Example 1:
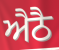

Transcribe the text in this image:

ਐਠੈ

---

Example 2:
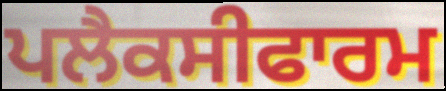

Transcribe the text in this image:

ਪਲੈਕਸੀਫਾਰਮ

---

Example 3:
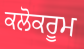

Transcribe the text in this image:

ਕਲੋਕਰੂਮ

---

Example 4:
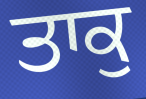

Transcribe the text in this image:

ਤਾਕੁ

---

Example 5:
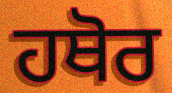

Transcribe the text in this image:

ਹਥੋਰ